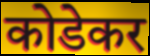
कोडेकर